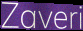
Zaveri